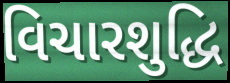
વિચારશુદ્ધિ